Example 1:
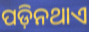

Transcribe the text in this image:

ପଡ଼ିନଥାଏ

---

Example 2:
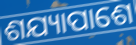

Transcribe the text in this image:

ଶଯ୍ୟାପାଶେ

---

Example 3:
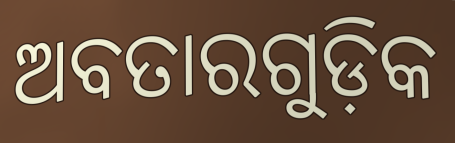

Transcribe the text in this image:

ଅବତାରଗୁଡ଼ିକ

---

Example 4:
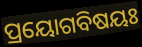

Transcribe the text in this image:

ପ୍ରୟୋଗବିଷୟଃ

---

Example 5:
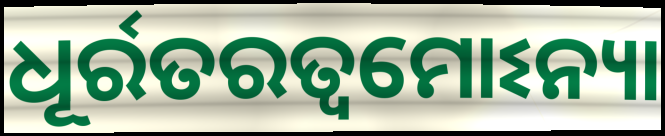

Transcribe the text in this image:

ଧୂର୍ରତରତ୍ୱମୋଽନ୍ୟା